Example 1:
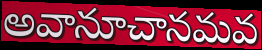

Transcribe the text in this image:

అవానూచానమవ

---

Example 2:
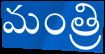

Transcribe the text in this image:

మంత్రి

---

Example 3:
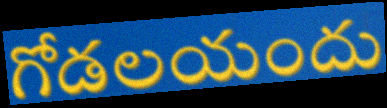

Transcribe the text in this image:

గోడలయందు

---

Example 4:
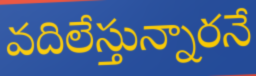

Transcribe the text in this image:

వదిలేస్తున్నారనే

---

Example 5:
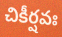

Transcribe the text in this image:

చికీర్షవః